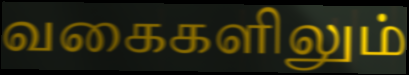
வகைகளிலும்